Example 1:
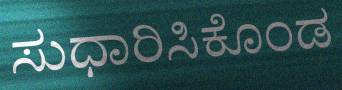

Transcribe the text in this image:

ಸುಧಾರಿಸಿಕೊಂಡ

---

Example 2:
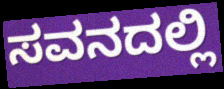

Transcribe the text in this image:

ಸವನದಲ್ಲಿ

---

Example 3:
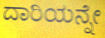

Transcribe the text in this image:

ದಾರಿಯನ್ನೇ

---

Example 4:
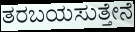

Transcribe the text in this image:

ತರಬಯಸುತ್ತೇನೆ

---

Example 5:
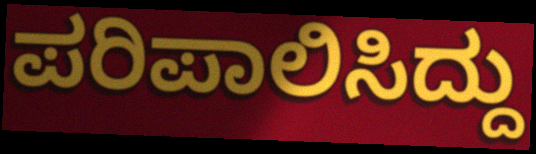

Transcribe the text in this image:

ಪರಿಪಾಲಿಸಿದ್ದು